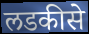
लडकीसे